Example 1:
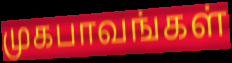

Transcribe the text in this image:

முகபாவங்கள்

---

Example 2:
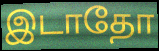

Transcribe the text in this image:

இடாதோ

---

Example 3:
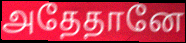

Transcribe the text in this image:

அதேதானே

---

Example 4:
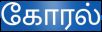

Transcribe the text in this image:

கோரல்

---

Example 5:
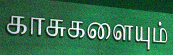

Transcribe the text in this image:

காசுகளையும்